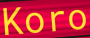
Koro